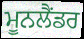
ਮੂਨਲੈਂਡਰ